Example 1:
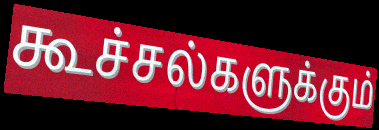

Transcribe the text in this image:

கூச்சல்களுக்கும்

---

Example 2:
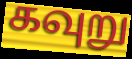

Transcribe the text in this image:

கவுறு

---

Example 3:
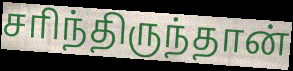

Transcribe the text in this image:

சரிந்திருந்தான்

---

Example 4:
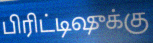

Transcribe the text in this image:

பிரிட்டிஷுக்கு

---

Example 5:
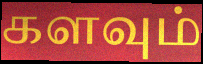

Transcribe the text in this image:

களவும்